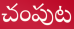
చంపుట